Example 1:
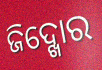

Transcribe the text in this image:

ଜିଦ୍ଖୋର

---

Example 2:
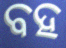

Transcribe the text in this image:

ବହ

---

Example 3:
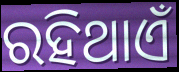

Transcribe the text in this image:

ରହିଥାଏଁ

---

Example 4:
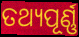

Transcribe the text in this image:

ତଥ୍ୟପୂର୍ଣ୍ଣ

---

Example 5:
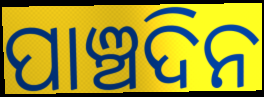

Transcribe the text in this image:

ପାଞ୍ଚଦିନ